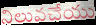
నిలువచేయు